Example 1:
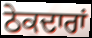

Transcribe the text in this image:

ਠੇਕਦਾਰਾਂ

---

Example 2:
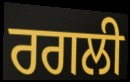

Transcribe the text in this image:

ਰਗਲੀ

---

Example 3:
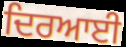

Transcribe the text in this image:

ਦਿਰਆਈ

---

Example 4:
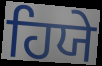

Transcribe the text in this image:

ਹਿਯੇ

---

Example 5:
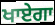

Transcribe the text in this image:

ਖਾਏਗਾ